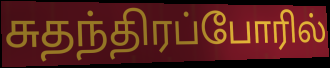
சுதந்திரப்போரில்